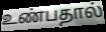
உண்பதால்